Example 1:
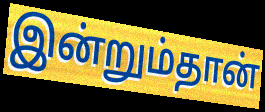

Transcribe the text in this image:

இன்றும்தான்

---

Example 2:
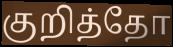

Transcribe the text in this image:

குறித்தோ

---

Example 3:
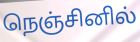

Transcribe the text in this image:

நெஞ்சினில்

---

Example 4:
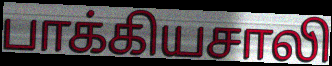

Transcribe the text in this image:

பாக்கியசாலி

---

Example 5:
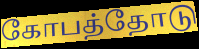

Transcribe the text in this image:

கோபத்தோடு